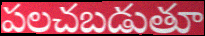
పలచబడుతూ